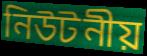
নিউটনীয়